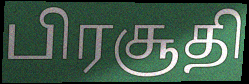
பிரசூதி